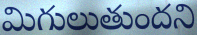
మిగులుతుందని